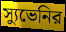
স্যুভেনির